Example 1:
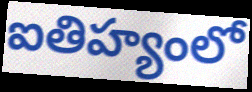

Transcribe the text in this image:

ఐతిహ్యంలో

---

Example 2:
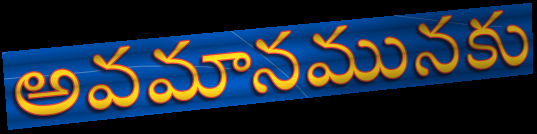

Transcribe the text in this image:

అవమానమునకు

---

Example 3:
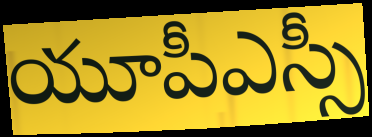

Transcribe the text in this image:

యూపీఎస్సీ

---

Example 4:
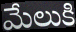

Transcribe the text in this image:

మేలుకి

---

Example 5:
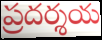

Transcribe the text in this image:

ప్రదర్శయ